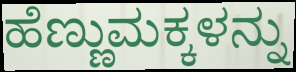
ಹೆಣ್ಣುಮಕ್ಕಳನ್ನು